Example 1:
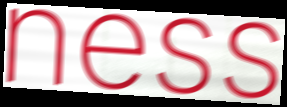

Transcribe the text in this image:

ness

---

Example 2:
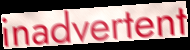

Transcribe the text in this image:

inadvertent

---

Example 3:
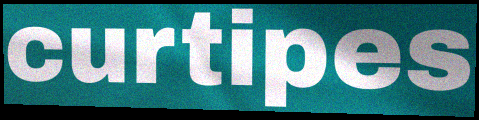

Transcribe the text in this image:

curtipes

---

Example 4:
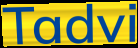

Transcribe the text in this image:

Tadvi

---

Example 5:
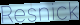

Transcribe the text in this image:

Resnick